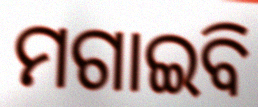
ମଗାଇବି